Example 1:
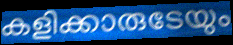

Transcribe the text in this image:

കളിക്കാരുടേയും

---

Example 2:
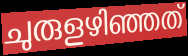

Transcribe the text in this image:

ചുരുളഴിഞ്ഞത്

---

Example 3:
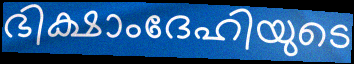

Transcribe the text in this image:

ഭിക്ഷാംദേഹിയുടെ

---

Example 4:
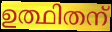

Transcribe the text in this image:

ഉത്ഥിതന്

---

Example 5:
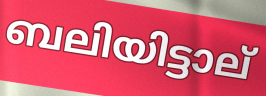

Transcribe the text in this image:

ബലിയിട്ടാല്